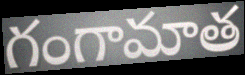
గంగామాత